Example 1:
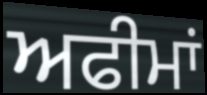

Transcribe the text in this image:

ਅਫੀਮਾਂ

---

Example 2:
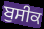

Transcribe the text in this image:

ਬੁਸੀਕ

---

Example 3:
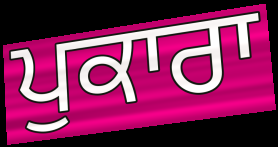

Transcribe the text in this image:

ਪੁਕਾਰਾ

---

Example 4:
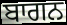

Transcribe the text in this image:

ਬਾਗਨ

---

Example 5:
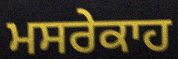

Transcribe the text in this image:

ਮਸਰੇਕਾਹ